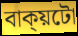
বাক্য়টো